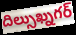
దిల్సుఖ్నగర్